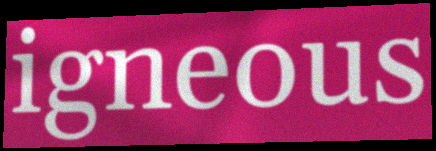
igneous